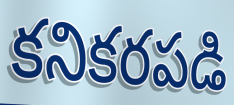
కనికరపడి